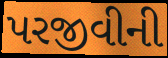
પરજીવીની